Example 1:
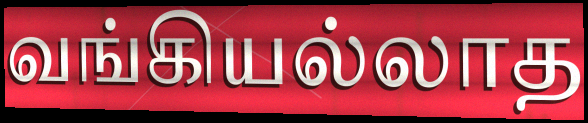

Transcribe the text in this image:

வங்கியல்லாத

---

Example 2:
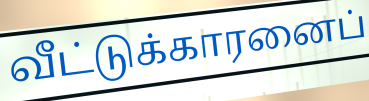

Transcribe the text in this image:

வீட்டுக்காரனைப்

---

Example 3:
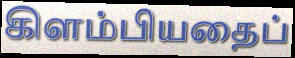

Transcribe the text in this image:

கிளம்பியதைப்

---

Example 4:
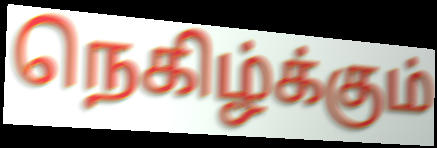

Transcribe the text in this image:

நெகிழ்க்கும்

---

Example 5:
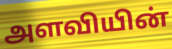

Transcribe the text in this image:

அளவியின்